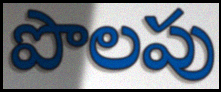
పొలపు